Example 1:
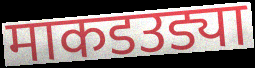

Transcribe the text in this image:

माकडउड्या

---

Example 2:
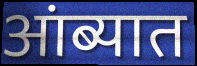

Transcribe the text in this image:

आंब्यात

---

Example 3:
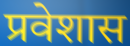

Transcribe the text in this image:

प्रवेशास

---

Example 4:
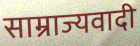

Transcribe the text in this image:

साम्राज्यवादी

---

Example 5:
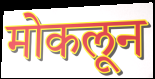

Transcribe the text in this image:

मोकलून